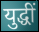
युद्धीं